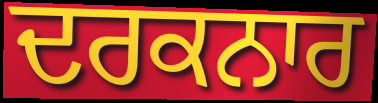
ਦਰਕਨਾਰ